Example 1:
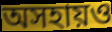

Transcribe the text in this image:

অসহায়ও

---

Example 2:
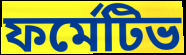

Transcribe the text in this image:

ফর্মেটিভ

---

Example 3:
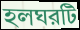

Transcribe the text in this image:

হলঘরটি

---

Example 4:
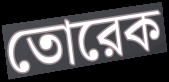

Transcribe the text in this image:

তোরেক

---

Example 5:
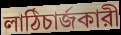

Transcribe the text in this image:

লাঠিচার্জকারী